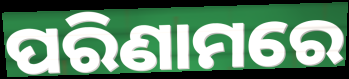
ପରିଣାମରେ